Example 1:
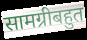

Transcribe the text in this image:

सामग्रीबहुत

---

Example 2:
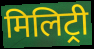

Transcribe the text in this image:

मिलिट्री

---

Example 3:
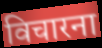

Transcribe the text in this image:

विचारना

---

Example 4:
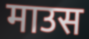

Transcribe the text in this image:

माउस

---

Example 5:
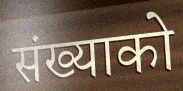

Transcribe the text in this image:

संख्याको